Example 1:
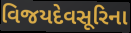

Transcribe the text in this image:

વિજયદેવસૂરિના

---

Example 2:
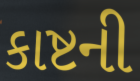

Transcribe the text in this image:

કાષ્ટની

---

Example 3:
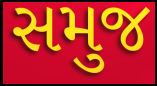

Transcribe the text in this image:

સમુજ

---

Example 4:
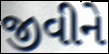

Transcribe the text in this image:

જીવીને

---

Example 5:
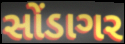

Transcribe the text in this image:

સોંડાગર